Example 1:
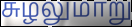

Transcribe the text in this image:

சுழலுமாறு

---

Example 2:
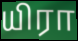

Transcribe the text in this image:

யிரா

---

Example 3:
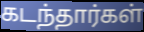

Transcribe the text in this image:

கடந்தார்கள்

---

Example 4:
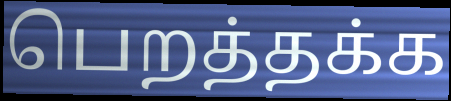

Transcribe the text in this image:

பெறத்தக்க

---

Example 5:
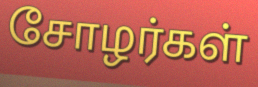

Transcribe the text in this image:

சோழர்கள்